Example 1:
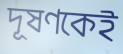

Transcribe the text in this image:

দূষণকেই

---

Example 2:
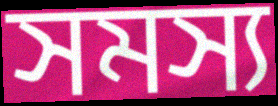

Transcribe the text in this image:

সমস্য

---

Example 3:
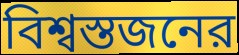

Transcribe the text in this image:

বিশ্বস্তজনের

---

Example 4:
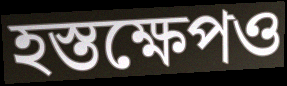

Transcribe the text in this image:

হস্তক্ষেপও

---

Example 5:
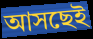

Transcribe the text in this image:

আসছেই